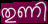
തുണി